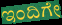
ಇಂದಿಗೇ